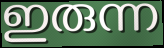
ഇരുന്ന